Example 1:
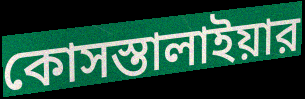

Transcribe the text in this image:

কোসস্তালাইয়ার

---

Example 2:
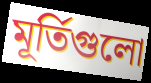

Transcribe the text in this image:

মূর্তিগুলো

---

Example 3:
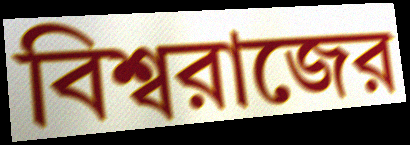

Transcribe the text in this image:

বিশ্বরাজের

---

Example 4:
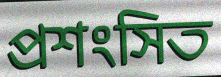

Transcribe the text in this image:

প্রশংসিত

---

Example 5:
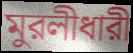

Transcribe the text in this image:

মুরলীধারী